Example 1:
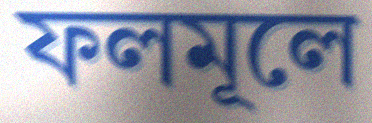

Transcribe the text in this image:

ফলমূলে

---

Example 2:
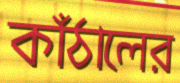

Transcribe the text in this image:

কাঁঠালের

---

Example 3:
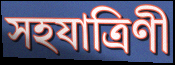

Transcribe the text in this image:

সহযাত্রিণী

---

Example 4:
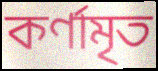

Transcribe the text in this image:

কর্ণামৃত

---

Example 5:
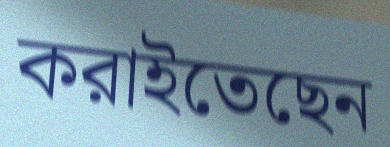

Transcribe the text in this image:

করাইতেছেন